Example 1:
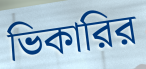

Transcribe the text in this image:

ভিকারির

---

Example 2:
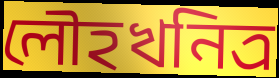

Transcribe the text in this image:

লৌহখনিত্র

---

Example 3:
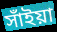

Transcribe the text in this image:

সাঁইয়া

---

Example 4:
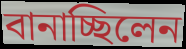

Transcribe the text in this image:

বানাচ্ছিলেন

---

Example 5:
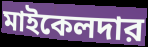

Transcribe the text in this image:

মাইকেলদার